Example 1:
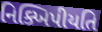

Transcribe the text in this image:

નિક્ખિપીયતિ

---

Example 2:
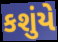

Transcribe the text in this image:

કશુંયે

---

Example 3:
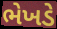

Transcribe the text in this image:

ભેખડે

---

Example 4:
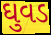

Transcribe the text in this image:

ઘુવડ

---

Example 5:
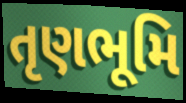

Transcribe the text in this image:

તૃણભૂમિ